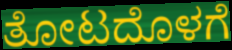
ತೋಟದೊಳಗೆ